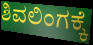
ಶಿವಲಿಂಗಕ್ಕೆ